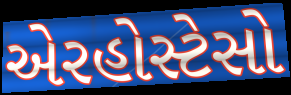
એરહોસ્ટેસો